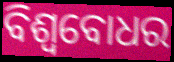
ବିଶ୍ବବୋଧର